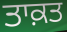
ਤਾਕ਼ਤ